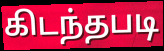
கிடந்தபடி